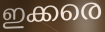
ഇക്കരെ